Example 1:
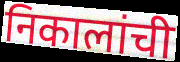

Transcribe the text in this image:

निकालांची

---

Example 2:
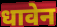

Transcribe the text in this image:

धावेन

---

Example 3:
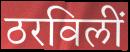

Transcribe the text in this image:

ठरविलीं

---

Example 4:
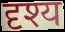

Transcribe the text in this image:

दृश्‍य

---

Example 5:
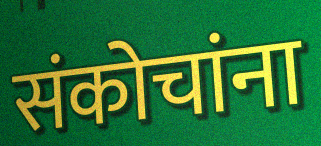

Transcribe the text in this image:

संकोचांना